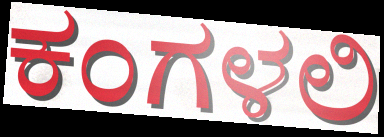
ಕಂಗಳಲಿ